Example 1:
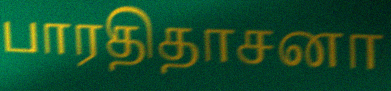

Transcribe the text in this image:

பாரதிதாசனா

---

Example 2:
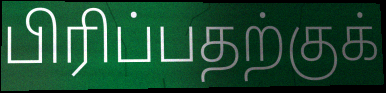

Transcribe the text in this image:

பிரிப்பதற்குக்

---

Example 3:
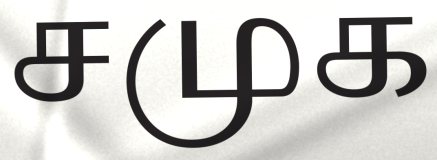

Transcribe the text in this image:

சமுக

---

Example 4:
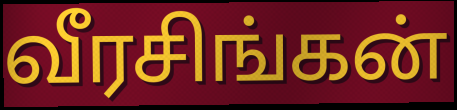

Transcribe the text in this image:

வீரசிங்கன்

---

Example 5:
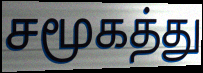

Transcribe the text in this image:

சமூகத்து